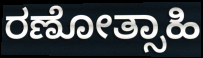
ರಣೋತ್ಸಾಹಿ